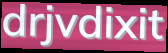
drjvdixit